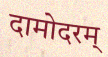
दामोदरम्